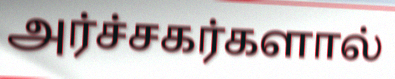
அர்ச்சகர்களால்